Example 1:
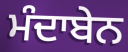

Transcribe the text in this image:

ਮੰਦਾਬੇਨ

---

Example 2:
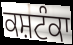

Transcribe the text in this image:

ਕਸ਼ਟੰਕਾ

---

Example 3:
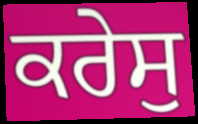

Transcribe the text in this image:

ਕਰੇਸੁ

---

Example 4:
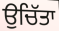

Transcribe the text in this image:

ਉਚਿੱਤਾ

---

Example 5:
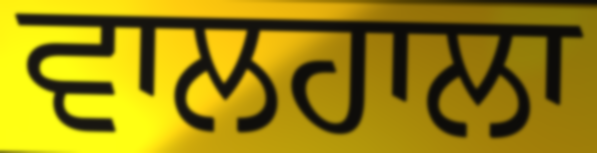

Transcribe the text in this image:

ਵਾਲਹਾਲਾ